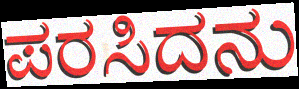
ಪರಸಿದನು